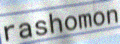
rashomon